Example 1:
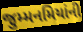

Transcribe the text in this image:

જુમ્મનમિયાંની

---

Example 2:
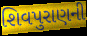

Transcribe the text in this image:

શિવપુરાણની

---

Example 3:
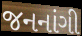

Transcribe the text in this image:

જનનાંગી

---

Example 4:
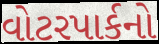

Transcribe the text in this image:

વોટરપાર્કનો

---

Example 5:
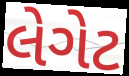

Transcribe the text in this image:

લેગેટ